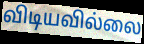
விடியவில்லை